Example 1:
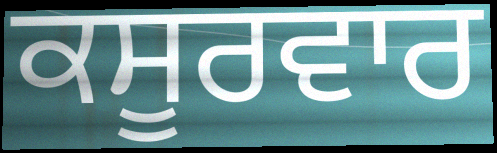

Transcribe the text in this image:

ਕਸੂਰਵਾਰ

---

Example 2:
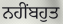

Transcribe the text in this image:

ਨਹੀਂਬਹੁਤ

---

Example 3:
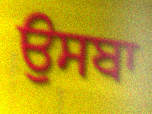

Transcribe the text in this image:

ਉਸਬਾ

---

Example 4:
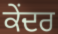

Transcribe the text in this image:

ਕੇੰਦਰ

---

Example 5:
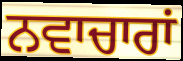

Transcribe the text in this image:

ਨਵਾਚਾਰਾਂ